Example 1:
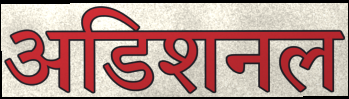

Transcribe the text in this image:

अडिशनल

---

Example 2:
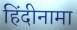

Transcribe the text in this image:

हिंदीनामा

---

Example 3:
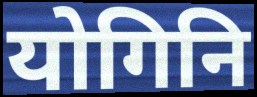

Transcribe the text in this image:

योगिनि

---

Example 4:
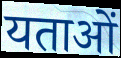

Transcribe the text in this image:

यताओं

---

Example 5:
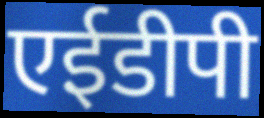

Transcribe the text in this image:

एईडीपी